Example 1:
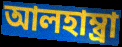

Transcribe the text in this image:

আলহাম্ব্রা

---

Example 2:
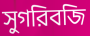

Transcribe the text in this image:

সুগরিবজি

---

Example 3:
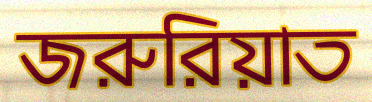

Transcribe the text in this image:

জরুরিয়াত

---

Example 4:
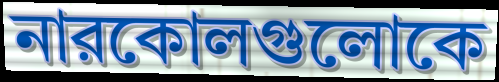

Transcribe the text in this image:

নারকোলগুলোকে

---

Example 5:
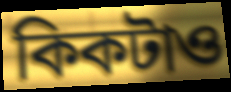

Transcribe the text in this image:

কিকটাও